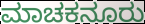
ಮಾಚಕನೂರು